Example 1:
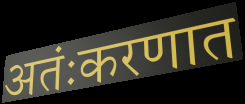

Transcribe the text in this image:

अतंःकरणात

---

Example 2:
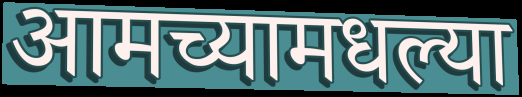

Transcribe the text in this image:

आमच्यामधल्या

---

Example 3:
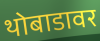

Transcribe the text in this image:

थोबाडावर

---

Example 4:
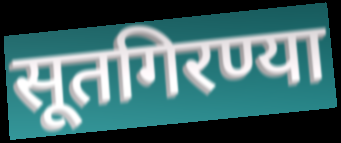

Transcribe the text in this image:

सूतगिरण्या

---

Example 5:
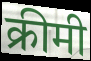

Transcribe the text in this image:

क्रीमी